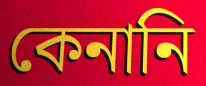
কেনানি